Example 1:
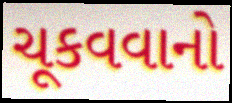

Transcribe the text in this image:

ચૂકવવાનો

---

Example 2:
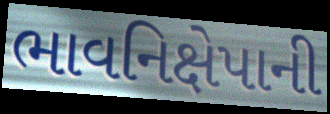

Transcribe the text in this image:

ભાવનિક્ષેપાની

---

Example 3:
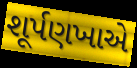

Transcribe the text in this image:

શૂર્પણખાએ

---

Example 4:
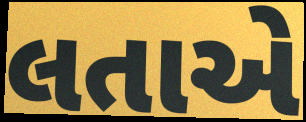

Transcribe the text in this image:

લતાએ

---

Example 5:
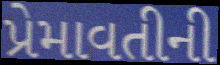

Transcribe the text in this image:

પ્રેમાવતીની